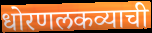
धोरणलकव्याची